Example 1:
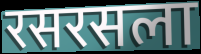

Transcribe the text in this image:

रसरसला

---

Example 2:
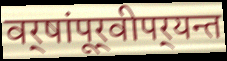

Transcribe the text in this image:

वर्षांपूर्वीपर्यन्त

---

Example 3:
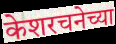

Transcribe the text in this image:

केशरचनेच्या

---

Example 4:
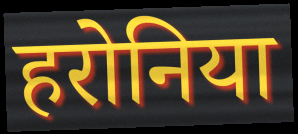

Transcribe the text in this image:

हरोनिया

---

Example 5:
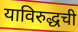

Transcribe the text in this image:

याविरुद्धची